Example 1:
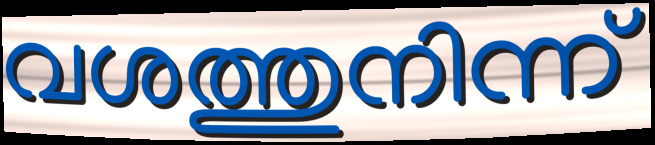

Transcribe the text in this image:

വശത്തുനിന്ന്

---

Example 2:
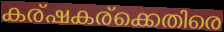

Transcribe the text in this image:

കര്ഷകര്ക്കെതിരെ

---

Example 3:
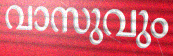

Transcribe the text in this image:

വാസുവും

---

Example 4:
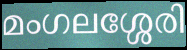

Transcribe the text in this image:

മംഗലശ്ശേരി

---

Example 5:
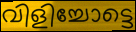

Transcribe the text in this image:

വിളിച്ചോട്ടെ